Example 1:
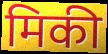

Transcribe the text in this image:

मिकी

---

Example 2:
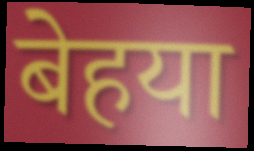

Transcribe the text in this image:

बेहया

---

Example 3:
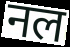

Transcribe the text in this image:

नल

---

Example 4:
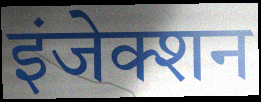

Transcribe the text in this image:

इंजेक्शन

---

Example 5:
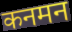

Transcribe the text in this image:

कनमन